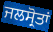
ਜਲਸ੍ਰੋਤਾਂ